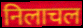
निलाचल